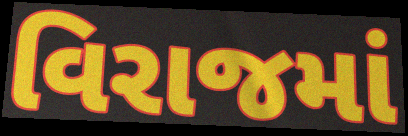
વિરાજમાં